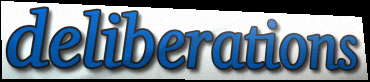
deliberations